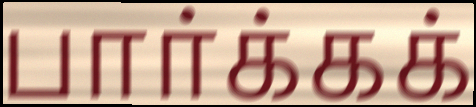
பார்க்கக்